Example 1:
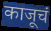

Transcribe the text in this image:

काजूचं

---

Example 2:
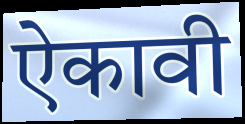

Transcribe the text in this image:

ऐकावी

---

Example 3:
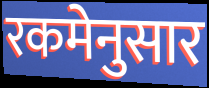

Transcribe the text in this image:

रकमेनुसार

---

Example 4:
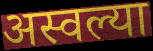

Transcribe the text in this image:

अस्वल्या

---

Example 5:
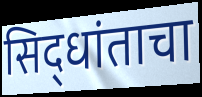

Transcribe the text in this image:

सिद्धांताचा